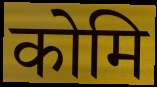
कोमि